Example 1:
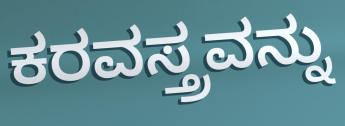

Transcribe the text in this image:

ಕರವಸ್ತ್ರವನ್ನು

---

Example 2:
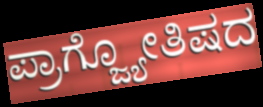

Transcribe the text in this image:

ಪ್ರಾಗ್ಜ್ಯೋತಿಷದ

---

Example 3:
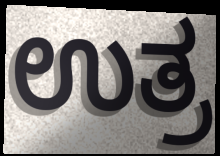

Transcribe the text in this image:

ಉತ್ರ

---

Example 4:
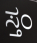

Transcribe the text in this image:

ಸ್ತಂ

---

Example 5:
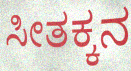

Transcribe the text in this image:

ಸೀತಕ್ಕನ